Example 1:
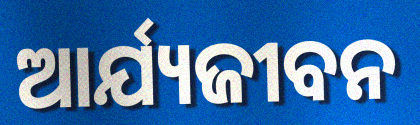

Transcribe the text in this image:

ଆର୍ଯ୍ୟଜୀବନ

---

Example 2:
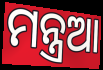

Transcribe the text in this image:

ମନ୍ତ୍ରଆ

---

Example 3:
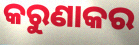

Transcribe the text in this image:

କରୁଣାକର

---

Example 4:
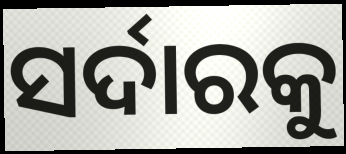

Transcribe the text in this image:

ସର୍ଦାରକୁ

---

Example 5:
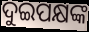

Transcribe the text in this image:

ଦୁଇପକ୍ଷଙ୍କ